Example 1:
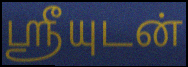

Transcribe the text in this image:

ஸ்ரீயுடன்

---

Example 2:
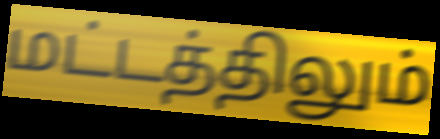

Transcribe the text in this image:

மட்டத்திலும்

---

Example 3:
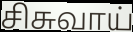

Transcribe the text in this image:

சிசுவாய்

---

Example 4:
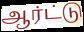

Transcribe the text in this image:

ஆர்ட்டு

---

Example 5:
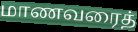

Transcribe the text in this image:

மாணவரைத்